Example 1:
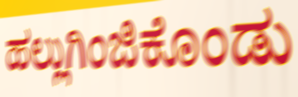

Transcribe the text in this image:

ಹಲ್ಲುಗಿಂಜಿಕೊಂಡು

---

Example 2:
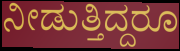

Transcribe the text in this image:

ನೀಡುತ್ತಿದ್ದರೂ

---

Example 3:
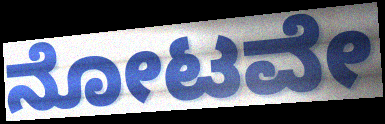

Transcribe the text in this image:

ನೋಟವೇ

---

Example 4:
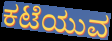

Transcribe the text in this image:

ಕಟೆಯುವ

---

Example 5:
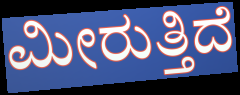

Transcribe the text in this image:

ಮೀರುತ್ತಿದೆ